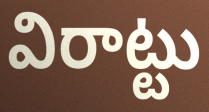
విరాట్టు